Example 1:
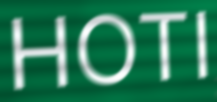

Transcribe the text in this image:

HOTI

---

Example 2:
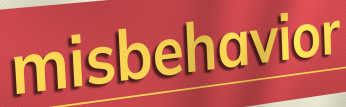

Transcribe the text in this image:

misbehavior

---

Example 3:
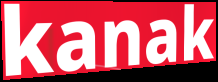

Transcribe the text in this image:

kanak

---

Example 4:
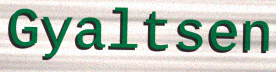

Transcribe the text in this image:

Gyaltsen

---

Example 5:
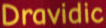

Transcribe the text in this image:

Dravidic